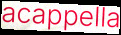
acappella